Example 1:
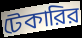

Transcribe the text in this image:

টেকারির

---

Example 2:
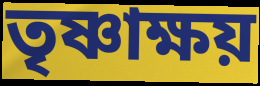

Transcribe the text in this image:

তৃষ্ণাক্ষয়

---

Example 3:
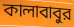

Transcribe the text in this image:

কালাবাবুর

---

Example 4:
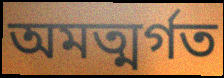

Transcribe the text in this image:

অমত্মর্গত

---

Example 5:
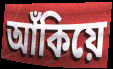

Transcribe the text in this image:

আঁকিয়ে